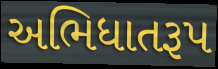
અભિધાતરૂપ